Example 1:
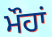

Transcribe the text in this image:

ਮੌਹਾਂ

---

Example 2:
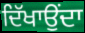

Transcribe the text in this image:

ਦਿੱਖਾਉਂਦਾ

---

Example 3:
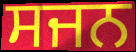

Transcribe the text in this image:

ਸਜਨ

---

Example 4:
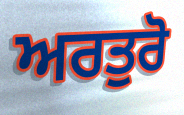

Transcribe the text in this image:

ਅਰਤੁਰੋ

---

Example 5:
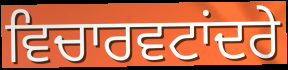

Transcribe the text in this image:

ਵਿਚਾਰਵਟਾਂਦਰੇ